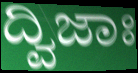
ದ್ವಿಜಾಃ